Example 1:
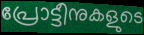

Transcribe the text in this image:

പ്രോട്ടീനുകളുടെ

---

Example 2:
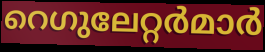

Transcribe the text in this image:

റെഗുലേറ്റർമാർ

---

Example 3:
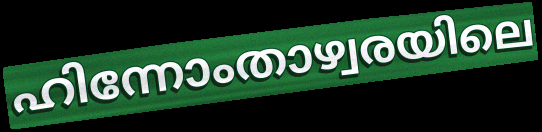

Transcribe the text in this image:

ഹിന്നോംതാഴ്വരയിലെ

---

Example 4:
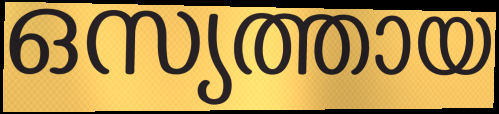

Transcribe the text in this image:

ഒസ്യത്തായ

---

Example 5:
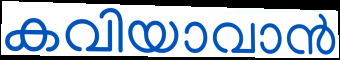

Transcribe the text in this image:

കവിയാവാൻ